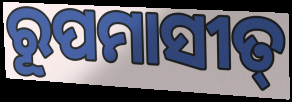
ରୂପମାସୀତ୍